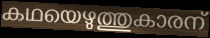
കഥയെഴുത്തുകാരന്